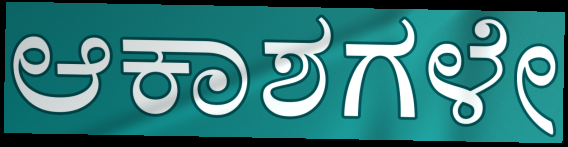
ಆಕಾಶಗಳೇ